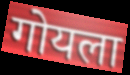
गोयला